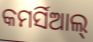
କମର୍ସିଆଲ୍